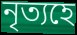
নৃত্যহে